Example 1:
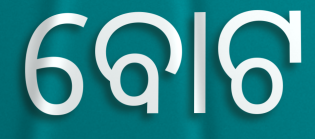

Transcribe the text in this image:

ବୋଟ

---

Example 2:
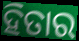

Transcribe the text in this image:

ହିତାର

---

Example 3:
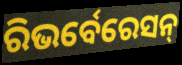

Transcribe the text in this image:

ରିଭର୍ବେରେସନ୍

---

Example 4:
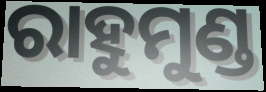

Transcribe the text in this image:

ରାହୁମୁଣ୍ଡ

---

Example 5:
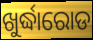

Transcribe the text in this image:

ଖୁର୍ଦ୍ଧାରୋଡ